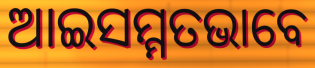
ଆଇସମ୍ମତଭାବେ